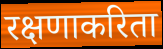
रक्षणाकरिता